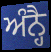
ਅੰਨ੍ਹੈ